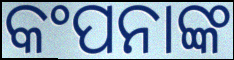
କଂପନାଙ୍କ